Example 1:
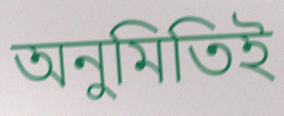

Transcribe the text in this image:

অনুমিতিই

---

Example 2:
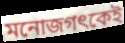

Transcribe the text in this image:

মনোজগৎকেই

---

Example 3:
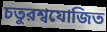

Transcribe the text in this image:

চতুরশ্বযোজিত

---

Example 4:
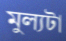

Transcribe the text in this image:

মুল্যটা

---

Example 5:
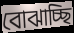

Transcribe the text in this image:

বোঝাচ্ছি